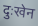
दुःखेन